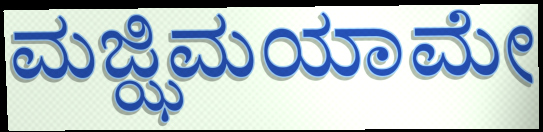
ಮಜ್ಝಿಮಯಾಮೇ